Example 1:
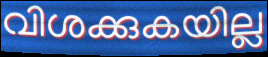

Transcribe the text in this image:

വിശക്കുകയില്ല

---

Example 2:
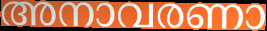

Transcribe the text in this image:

അനാവരണാ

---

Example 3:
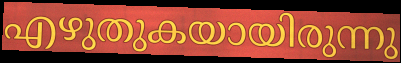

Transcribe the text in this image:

എഴുതുകയായിരുന്നു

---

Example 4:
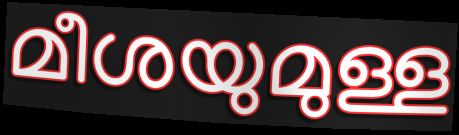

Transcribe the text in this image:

മീശയുമുള്ള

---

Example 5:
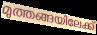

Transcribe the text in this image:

മുത്തങ്ങയിലേക്ക്